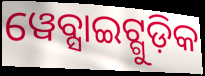
ୱେବ୍ସାଇଟ୍ଗୁଡ଼ିକ